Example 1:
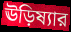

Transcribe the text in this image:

ঊড়িষ্যার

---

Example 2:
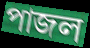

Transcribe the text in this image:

পাজল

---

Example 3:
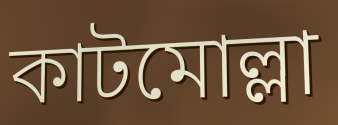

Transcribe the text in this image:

কাটমোল্লা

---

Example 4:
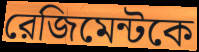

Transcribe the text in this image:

রেজিমেন্টকে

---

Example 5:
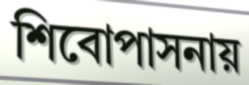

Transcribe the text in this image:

শিবোপাসনায়